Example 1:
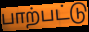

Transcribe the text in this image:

பாற்பட்டு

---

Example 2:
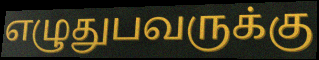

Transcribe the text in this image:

எழுதுபவருக்கு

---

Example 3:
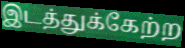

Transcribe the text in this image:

இடத்துக்கேற்ற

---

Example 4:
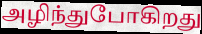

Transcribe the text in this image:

அழிந்துபோகிறது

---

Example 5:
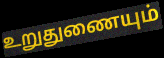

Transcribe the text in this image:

உறுதுணையும்